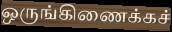
ஒருங்கிணைக்கச்